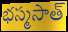
భస్మసాత్